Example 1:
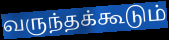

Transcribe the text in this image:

வருந்தக்கூடும்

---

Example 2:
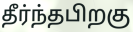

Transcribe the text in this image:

தீர்ந்தபிறகு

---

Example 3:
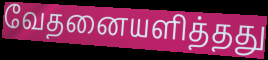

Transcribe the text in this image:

வேதனையளித்தது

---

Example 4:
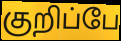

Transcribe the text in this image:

குறிப்பே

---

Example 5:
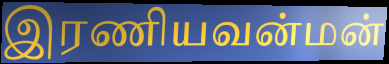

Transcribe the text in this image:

இரணியவன்மன்